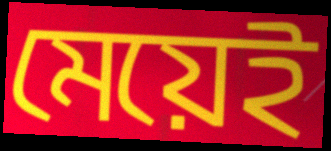
মেয়েই